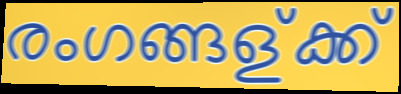
രംഗങ്ങള്ക്ക്